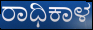
ರಾಧಿಕಾಳ